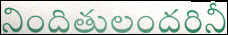
నిందితులందరినీ